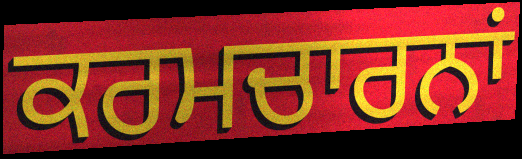
ਕਰਮਚਾਰਨਾਂ